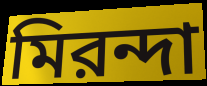
মিরন্দা